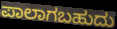
ಪಾಲಾಗಬಹುದು